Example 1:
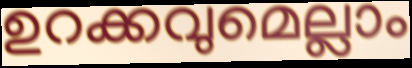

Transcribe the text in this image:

ഉറക്കവുമെല്ലാം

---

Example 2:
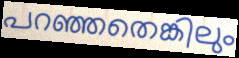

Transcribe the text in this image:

പറഞ്ഞതെങ്കിലും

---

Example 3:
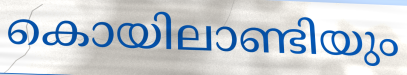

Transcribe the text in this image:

കൊയിലാണ്ടിയും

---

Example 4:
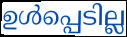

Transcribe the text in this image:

ഉൾപ്പെടില്ല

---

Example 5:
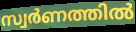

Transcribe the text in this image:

സ്വർണത്തിൽ